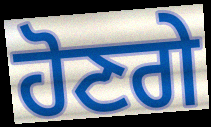
ਹੋਣਗੇ